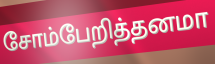
சோம்பேறித்தனமா